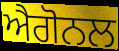
ਐਗੋਨਲ